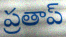
ప్రతాప్